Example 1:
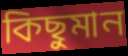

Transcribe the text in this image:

কিছুমান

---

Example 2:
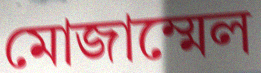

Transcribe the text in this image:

মোজাম্মেল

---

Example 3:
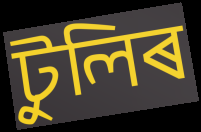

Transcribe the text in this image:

টুলিৰ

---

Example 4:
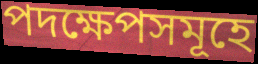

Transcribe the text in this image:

পদক্ষেপসমূহে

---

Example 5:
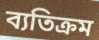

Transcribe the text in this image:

ব্যতিক্ৰম